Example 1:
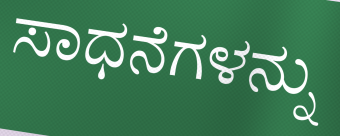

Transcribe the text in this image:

ಸಾಧನೆಗಳನ್ನು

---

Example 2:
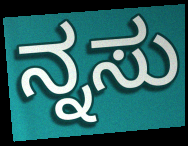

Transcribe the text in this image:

ನ್ನಸು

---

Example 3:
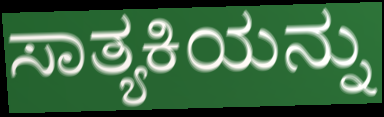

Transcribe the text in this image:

ಸಾತ್ಯಕಿಯನ್ನು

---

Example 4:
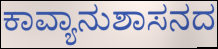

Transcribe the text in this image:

ಕಾವ್ಯಾನುಶಾಸನದ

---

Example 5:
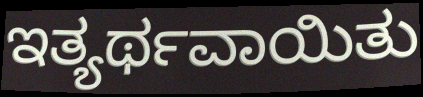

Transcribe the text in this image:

ಇತ್ಯರ್ಥವಾಯಿತು